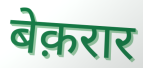
बेक़रार